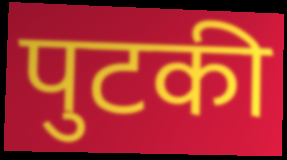
पुटकी